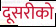
दूसरीको